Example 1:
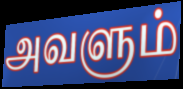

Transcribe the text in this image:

அவளும்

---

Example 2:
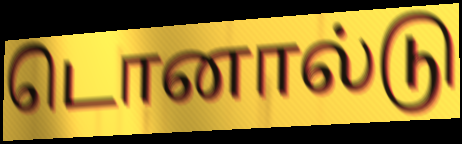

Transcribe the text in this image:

டொனால்டு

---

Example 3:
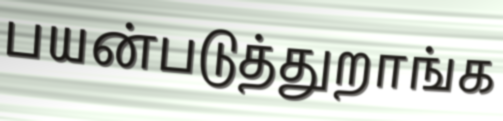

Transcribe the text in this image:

பயன்படுத்துறாங்க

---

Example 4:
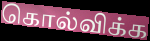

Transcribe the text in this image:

கொல்விக்க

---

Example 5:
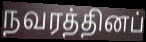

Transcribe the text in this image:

நவரத்தினப்